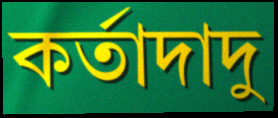
কর্তাদাদু